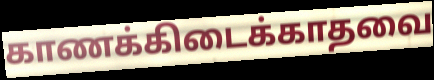
காணக்கிடைக்காதவை